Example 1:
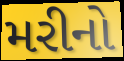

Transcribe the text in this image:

મરીનો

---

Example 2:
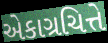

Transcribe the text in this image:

એકાગ્રચિત્તે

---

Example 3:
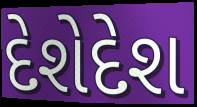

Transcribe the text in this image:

દેશેદેશ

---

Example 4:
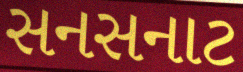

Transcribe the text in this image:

સનસનાટ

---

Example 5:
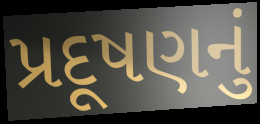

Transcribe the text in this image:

પ્રદૂષણનું